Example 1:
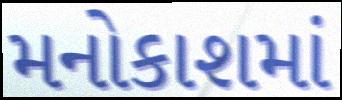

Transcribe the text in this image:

મનોકાશમાં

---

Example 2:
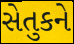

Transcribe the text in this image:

સેતુકને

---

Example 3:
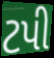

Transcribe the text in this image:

ટપી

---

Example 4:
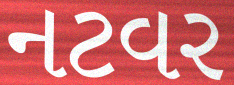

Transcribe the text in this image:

નટવર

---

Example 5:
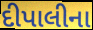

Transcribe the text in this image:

દીપાલીના